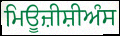
ਮਿਊਜ਼ੀਸ਼ੀਅੰਸ